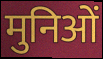
मुनिओं